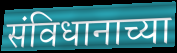
संविधानाच्या